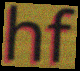
hf